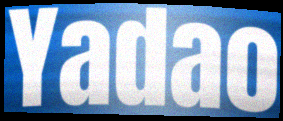
Yadao